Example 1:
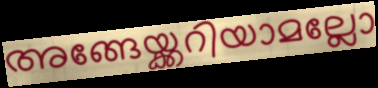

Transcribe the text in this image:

അങ്ങേയ്ക്കറിയാമല്ലോ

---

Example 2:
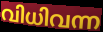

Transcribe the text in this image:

വിധിവന്ന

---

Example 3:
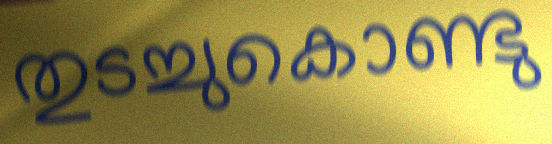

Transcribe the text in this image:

തുടച്ചുകൊണ്ടു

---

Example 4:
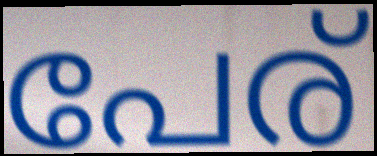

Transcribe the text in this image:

പേര്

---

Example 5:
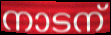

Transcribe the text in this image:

നാടന്